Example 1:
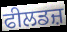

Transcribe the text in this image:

ਫੀਲਡਜ਼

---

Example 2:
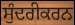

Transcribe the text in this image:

ਸੁੰਦਰੀਕਰਨ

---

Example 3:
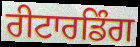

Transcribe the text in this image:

ਰੀਟਾਰਡਿੰਗ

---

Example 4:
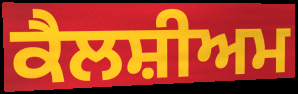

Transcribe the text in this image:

ਕੈਲਸ਼ੀਅਮ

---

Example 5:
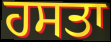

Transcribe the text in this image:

ਹਸਤਾ